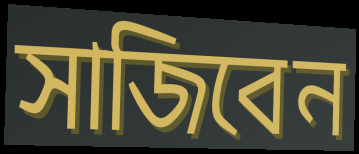
সাজিবেন